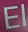
El